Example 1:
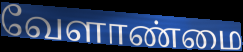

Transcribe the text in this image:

வேளாண்மை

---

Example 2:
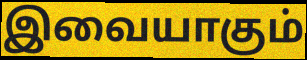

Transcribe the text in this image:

இவையாகும்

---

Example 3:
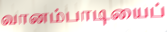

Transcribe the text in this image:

வானம்பாடியைப்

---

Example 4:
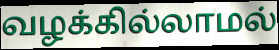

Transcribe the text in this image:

வழக்கில்லாமல்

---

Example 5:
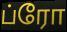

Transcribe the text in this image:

ப்ரோ